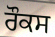
ਰੌਕਸ